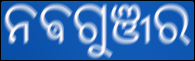
ନଵଗୁଞ୍ଜର